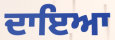
ਦਾਇਆ